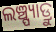
ଲଞ୍ଚ୍ପ୍ୟାଡ୍ରୁ